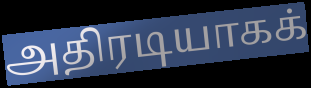
அதிரடியாகக்